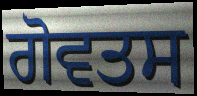
ਗੋਵਤਸ